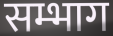
सम्भाग